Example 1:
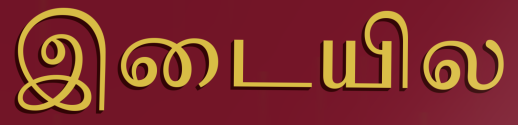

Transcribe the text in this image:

இடையில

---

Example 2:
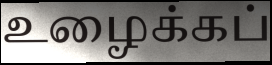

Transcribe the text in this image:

உழைக்கப்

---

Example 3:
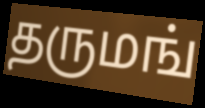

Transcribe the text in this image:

தருமங்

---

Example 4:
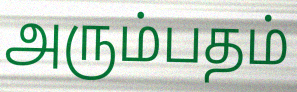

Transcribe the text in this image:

அரும்பதம்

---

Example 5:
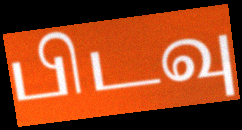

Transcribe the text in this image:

பிடவு